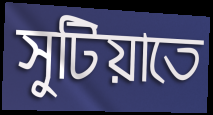
সুটিয়াতে